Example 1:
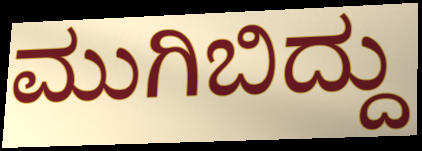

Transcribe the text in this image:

ಮುಗಿಬಿದ್ದು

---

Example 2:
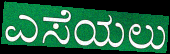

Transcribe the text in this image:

ಎಸೆಯಲು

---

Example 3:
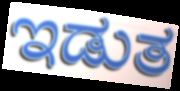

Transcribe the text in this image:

ಇಡುತ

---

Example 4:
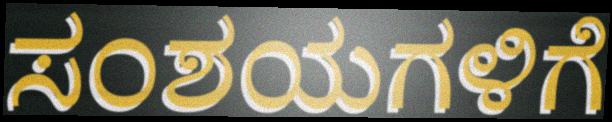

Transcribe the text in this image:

ಸಂಶಯಗಳಿಗೆ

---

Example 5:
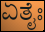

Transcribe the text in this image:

ಏತೈಃ